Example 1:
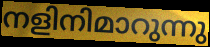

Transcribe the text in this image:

നളിനിമാറുന്നു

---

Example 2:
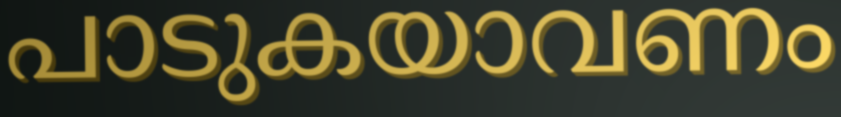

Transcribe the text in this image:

പാടുകയാവണം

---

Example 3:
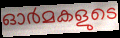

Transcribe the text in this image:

ഓർമകളുടെ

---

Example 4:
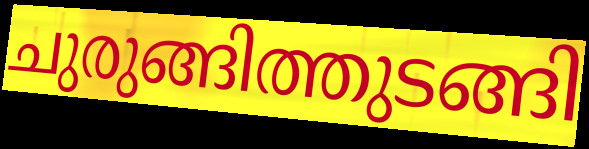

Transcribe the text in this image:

ചുരുങ്ങിത്തുടങ്ങി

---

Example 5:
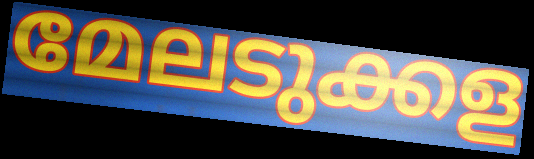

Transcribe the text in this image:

മേലടുക്കള